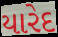
યારેદ